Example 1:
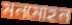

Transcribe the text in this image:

মনমোহন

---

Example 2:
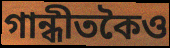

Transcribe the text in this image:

গান্ধীতকৈও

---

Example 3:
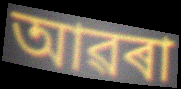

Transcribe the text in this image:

আৱৰা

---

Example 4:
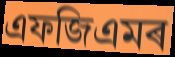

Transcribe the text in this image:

এফজিএমৰ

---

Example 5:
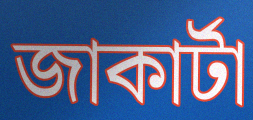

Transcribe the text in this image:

জাকাৰ্টা